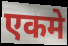
एकमे